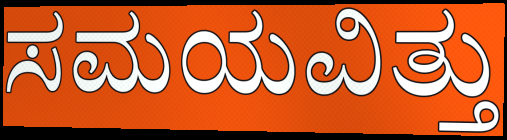
ಸಮಯವಿತ್ತು